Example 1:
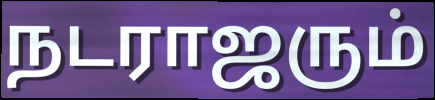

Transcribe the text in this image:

நடராஜரும்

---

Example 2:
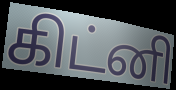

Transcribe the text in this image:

கிட்னி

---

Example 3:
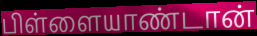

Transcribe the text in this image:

பிள்ளையாண்டான்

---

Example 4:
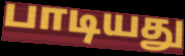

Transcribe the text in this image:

பாடியது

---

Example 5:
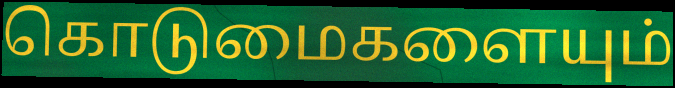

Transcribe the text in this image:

கொடுமைகளையும்